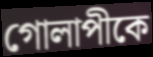
গোলাপীকে